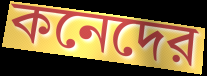
কনেদের